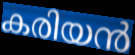
കരിയൻ